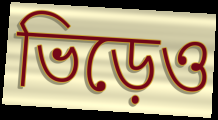
ভিড়েও